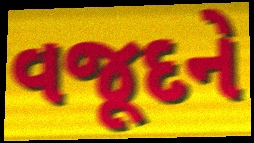
વજૂદને